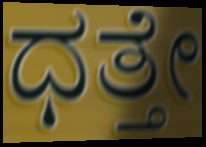
ಧತ್ತೇ